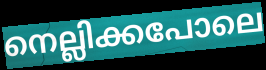
നെല്ലിക്കപോലെ